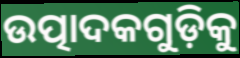
ଉତ୍ପାଦକଗୁଡ଼ିକୁ